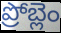
ప్రోబ్లెం